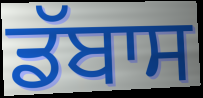
ਡੱਬਾਸ